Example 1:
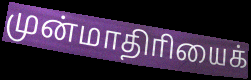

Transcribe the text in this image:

முன்மாதிரியைக்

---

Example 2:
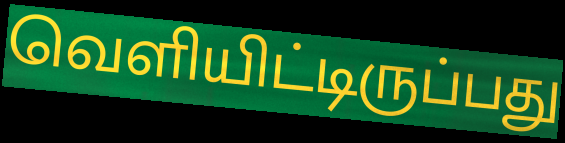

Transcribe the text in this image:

வெளியிட்டிருப்பது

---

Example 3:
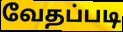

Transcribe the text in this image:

வேதப்படி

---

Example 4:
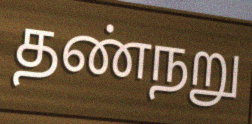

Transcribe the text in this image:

தண்நறு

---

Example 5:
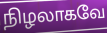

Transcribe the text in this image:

நிழலாகவே